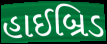
હાઈબ્રિડ